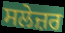
ਸਲੇਜ਼ਰ